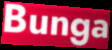
Bunga